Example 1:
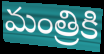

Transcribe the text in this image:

మంత్రికి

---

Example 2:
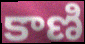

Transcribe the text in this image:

కాణి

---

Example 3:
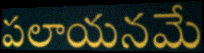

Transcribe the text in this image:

పలాయనమే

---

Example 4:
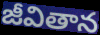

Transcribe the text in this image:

జీవితాన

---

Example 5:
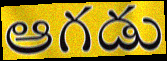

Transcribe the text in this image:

ఆగడు